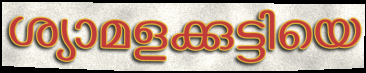
ശ്യാമളക്കുട്ടിയെ